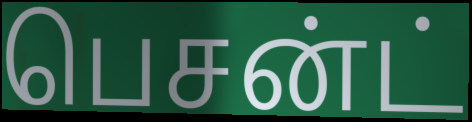
பெசன்ட்